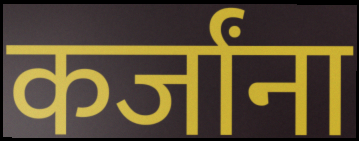
कर्जांना